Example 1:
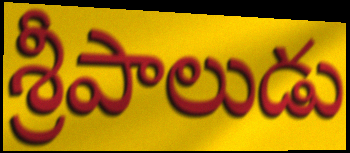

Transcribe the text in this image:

శ్రీపాలుడు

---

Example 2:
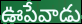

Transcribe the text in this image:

ఊపేవాడు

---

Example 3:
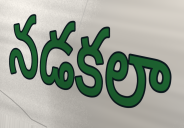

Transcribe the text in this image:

నడకలా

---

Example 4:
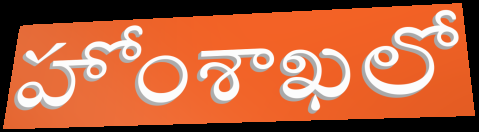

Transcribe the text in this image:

హోంశాఖలో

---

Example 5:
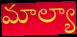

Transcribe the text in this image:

మాల్యా